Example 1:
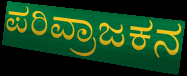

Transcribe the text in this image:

ಪರಿವ್ರಾಜಕನ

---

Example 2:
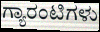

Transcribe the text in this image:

ಗ್ಯಾರಂಟಿಗಳು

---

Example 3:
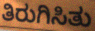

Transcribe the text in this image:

ತಿರುಗಿಸಿತು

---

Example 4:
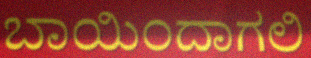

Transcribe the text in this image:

ಬಾಯಿಂದಾಗಲಿ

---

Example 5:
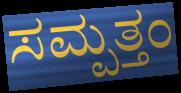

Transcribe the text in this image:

ಸಮ್ಪತ್ತಂ